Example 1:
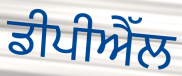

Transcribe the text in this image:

ਡੀਪੀਐੱਲ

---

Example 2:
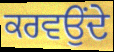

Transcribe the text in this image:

ਕਰਵਉਂਦੇ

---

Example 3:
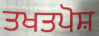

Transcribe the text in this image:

ਤਖਤਪੋਸ਼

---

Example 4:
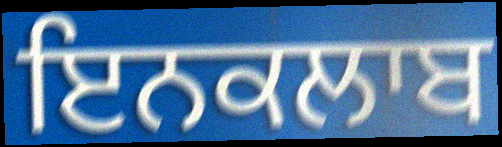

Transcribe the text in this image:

ਇਨਕਲਾਬ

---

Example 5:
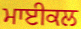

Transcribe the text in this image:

ਮਾਈਕਲ